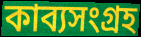
কাব্যসংগ্রহ